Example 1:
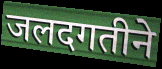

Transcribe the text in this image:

जलदगतीने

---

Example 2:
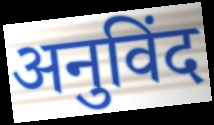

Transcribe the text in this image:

अनुविंद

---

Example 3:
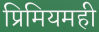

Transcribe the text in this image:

प्रिमियमही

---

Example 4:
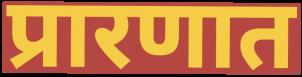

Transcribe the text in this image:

प्रारणात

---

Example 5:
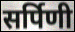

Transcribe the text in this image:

सर्पिणी